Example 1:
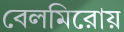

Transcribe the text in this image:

বেলমিরোয়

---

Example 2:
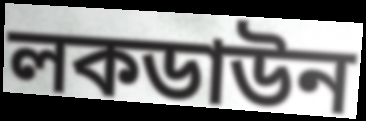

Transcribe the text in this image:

লকডাউন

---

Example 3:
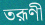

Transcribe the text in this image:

তরূণী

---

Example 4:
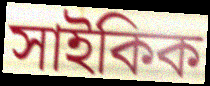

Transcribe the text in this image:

সাইকিক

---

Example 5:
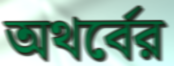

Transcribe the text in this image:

অথর্বের